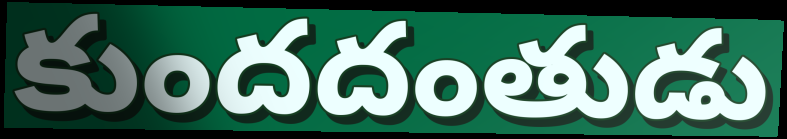
కుందదంతుడు